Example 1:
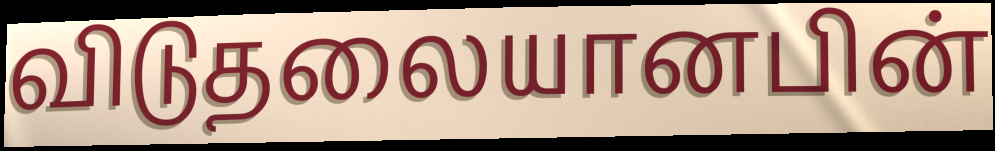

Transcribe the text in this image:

விடுதலையானபின்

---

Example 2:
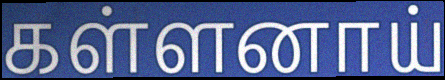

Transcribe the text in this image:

கள்ளனாய்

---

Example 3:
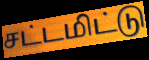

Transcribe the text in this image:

சட்டமிட்டு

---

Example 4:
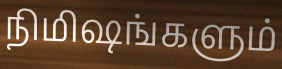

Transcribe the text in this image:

நிமிஷங்களும்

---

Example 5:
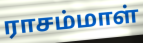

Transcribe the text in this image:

ராசம்மாள்